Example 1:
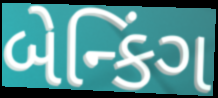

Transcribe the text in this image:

બેન્કિંગ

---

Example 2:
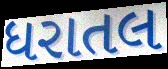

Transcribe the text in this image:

ધરાતલ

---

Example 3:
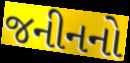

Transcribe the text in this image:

જનીનનો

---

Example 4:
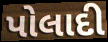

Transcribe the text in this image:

પોલાદી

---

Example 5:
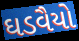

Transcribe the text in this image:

ઘડવૈયો